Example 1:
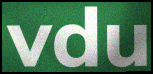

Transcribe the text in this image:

vdu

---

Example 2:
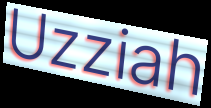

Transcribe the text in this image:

Uzziah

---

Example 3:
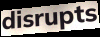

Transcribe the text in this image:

disrupts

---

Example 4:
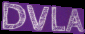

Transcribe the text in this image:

DVLA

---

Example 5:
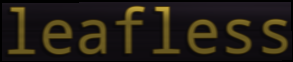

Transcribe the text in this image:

leafless